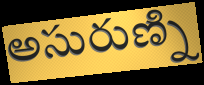
అసురుణ్ని